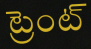
ట్రెంట్